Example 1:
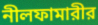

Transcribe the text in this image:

নীলফামারীর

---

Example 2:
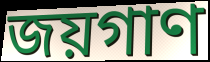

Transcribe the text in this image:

জয়গাণ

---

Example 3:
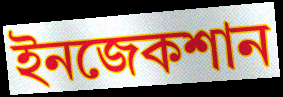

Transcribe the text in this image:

ইনজেকশান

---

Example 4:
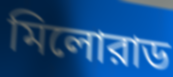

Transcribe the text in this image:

মিলোরাড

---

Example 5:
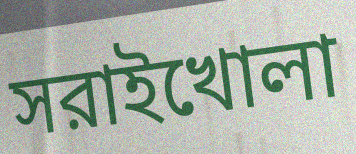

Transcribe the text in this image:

সরাইখোলা